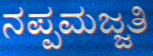
ನಪ್ಪಮಜ್ಜತಿ